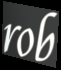
rob